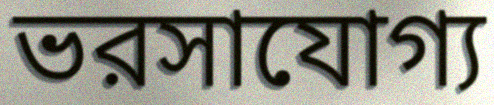
ভরসাযোগ্য